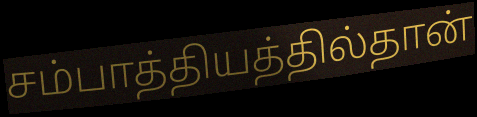
சம்பாத்தியத்தில்தான்